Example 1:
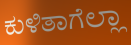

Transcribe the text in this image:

ಕುಳಿತಾಗೆಲ್ಲಾ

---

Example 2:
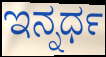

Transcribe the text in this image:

ಇನ್ನರ್ಧ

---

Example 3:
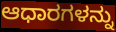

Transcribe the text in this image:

ಆಧಾರಗಳನ್ನು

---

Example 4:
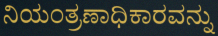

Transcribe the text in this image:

ನಿಯಂತ್ರಣಾಧಿಕಾರವನ್ನು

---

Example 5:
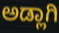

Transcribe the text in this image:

ಅಡ್ಲಾಗಿ